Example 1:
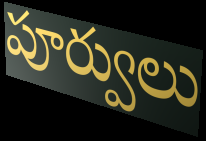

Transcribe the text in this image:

పూర్వులు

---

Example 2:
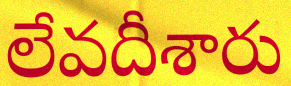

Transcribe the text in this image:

లేవదీశారు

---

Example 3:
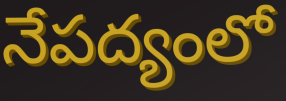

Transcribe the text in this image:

నేపద్యంలో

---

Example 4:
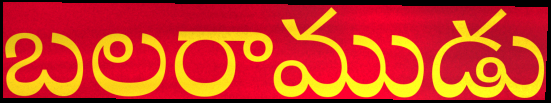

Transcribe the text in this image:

బలరాముడు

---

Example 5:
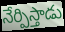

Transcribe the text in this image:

నేర్పిస్తాడు